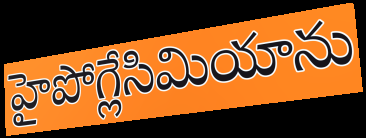
హైపోగ్లేసిమియాను